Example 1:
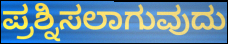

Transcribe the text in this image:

ಪ್ರಶ್ನಿಸಲಾಗುವುದು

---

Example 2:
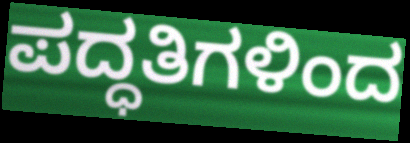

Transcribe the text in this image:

ಪದ್ಧತಿಗಳಿಂದ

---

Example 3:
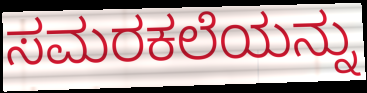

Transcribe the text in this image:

ಸಮರಕಲೆಯನ್ನು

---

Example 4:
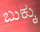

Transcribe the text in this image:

ಬುಕ್ಕು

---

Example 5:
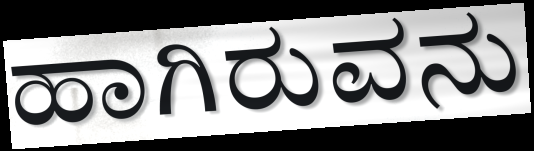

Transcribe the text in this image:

ಹಾಗಿರುವನು